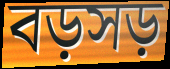
বড়সড়